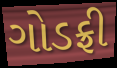
ગોડફ્રી